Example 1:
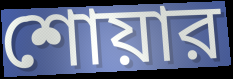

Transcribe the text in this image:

শোয়ার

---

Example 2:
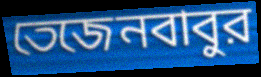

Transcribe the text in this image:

তেজেনবাবুর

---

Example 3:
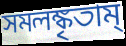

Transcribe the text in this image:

সমলঙ্কৃতাম্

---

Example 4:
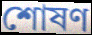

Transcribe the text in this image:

শোষণ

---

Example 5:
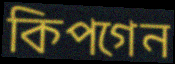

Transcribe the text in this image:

কিপগেন